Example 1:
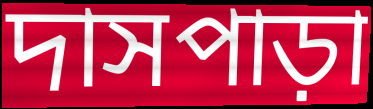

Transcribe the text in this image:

দাসপাড়া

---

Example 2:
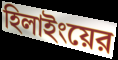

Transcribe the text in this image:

হিলাইংয়ের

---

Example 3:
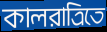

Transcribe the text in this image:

কালরাত্রিতে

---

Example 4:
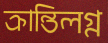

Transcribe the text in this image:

ক্রান্তিলগ্ন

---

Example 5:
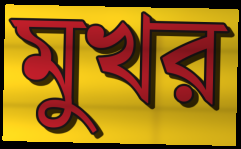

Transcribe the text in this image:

মুখর